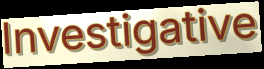
Investigative